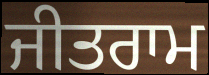
ਜੀਤਰਾਮ